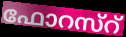
ഫോറസ്റ്